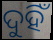
ଦୁହିଁ